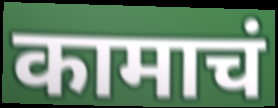
कामाचं